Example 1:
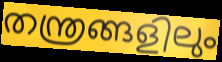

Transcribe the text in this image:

തന്ത്രങ്ങളിലും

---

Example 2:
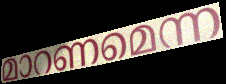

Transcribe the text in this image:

മാറണമെന്ന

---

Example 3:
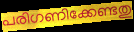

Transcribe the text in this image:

പരിഗണിക്കേണ്ടതു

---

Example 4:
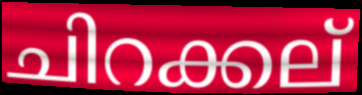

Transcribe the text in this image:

ചിറക്കല്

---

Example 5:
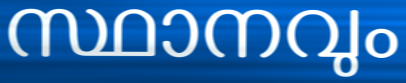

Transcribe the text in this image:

സ്ഥാനവും